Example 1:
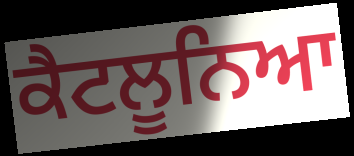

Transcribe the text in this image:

ਕੈਟਲੂਨਿਆ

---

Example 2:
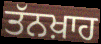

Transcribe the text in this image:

ਤੱਨਖ਼ਾਹ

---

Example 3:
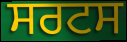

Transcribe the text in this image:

ਸਰਟਸ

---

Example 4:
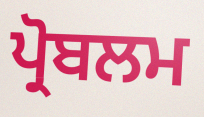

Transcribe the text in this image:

ਪ੍ਰੋਬਲਮ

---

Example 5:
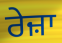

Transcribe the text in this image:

ਰੇਜ਼ਾ